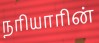
நரியாரின்